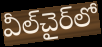
వీల్‌చైర్‌లో